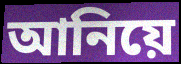
আনিয়ে